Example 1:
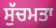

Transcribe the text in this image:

ਸੁੱਚਮਤਾ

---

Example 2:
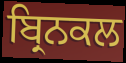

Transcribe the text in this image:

ਬ੍ਰਿਨਕਲ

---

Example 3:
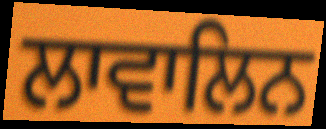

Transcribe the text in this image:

ਲਾਵਾਲਿਨ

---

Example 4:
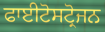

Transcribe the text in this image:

ਫਾਈਟੋਸਟ੍ਰੋਜਨ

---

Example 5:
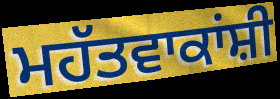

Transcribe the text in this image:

ਮਹੱਤਵਾਕਾਂਸ਼ੀ